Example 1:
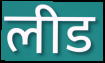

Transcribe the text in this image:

लीड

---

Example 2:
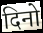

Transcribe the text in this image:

दिनो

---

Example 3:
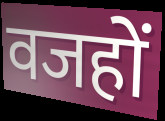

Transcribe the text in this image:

वजहों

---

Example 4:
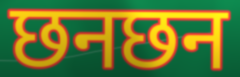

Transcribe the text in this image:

छनछन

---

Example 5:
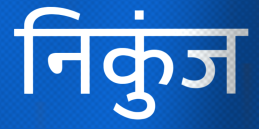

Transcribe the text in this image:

निकुंज